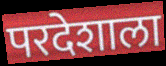
परदेशाला